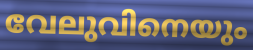
വേലുവിനെയും